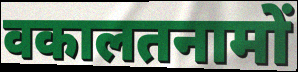
वकालतनामों